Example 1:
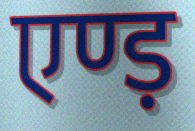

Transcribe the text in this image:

एण्ड़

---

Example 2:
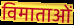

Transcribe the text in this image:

विमाताओं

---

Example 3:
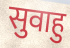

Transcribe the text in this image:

सुवाहु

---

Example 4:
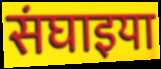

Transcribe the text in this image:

संघाइया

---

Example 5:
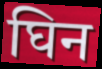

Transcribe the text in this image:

घिन